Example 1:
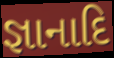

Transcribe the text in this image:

જ્ઞાનાદિ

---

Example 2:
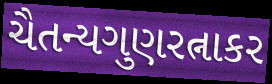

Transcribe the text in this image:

ચૈતન્યગુણરત્નાકર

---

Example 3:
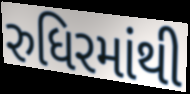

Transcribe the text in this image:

રુધિરમાંથી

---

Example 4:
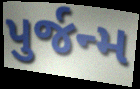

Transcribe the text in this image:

પુર્જન્મ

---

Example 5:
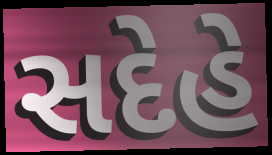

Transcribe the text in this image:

સદેહે